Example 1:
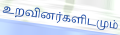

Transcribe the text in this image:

உறவினர்களிடமும்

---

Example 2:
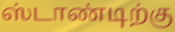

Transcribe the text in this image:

ஸ்டாண்டிற்கு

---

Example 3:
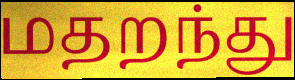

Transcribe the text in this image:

மதறந்து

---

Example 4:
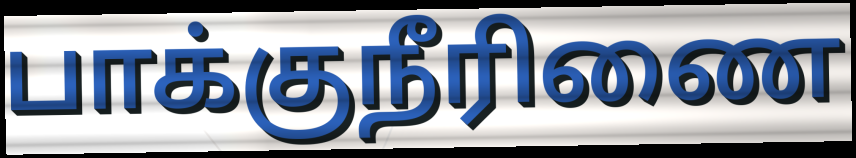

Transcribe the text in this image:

பாக்குநீரிணை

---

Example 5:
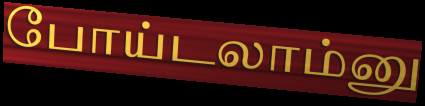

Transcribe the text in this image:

போய்டலாம்னு